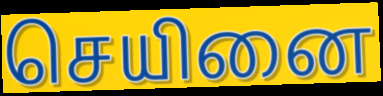
செயினை